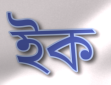
ইক